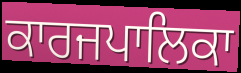
ਕਾਰਜਪਾਲਿਕਾ